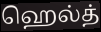
ஹெல்த்